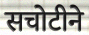
सचोटीने